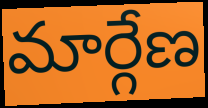
మార్గేణ